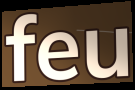
feu